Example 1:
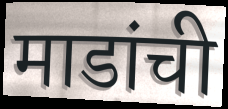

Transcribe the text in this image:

माडांची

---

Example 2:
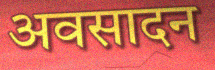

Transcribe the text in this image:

अवसादन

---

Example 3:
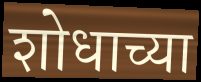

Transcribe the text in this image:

शोधाच्या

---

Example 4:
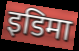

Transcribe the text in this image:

इडिमा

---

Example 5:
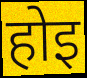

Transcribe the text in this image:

होइ